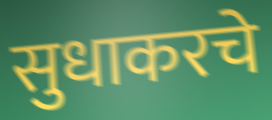
सुधाकरचे